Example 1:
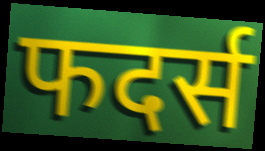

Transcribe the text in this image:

फदर्स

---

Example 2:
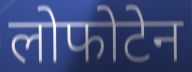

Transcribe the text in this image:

लोफोटेन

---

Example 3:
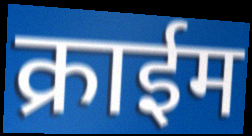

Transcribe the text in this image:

क्राईम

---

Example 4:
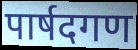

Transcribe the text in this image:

पार्षदगण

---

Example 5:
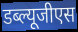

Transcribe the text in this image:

डब्ल्यूजीएस